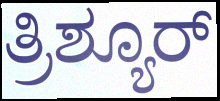
ತ್ರಿಶ್ಯೂರ್